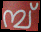
മ്പ്